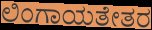
ಲಿಂಗಾಯತೇತರ